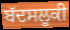
ਬੱਦਸਲੂਕੀ